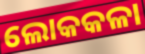
ଲୋକକଳା